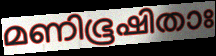
മണിഭൂഷിതാഃ